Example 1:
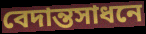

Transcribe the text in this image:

বেদান্তসাধনে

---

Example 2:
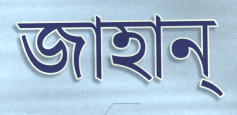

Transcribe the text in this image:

জাহান্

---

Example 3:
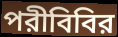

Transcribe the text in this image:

পরীবিবির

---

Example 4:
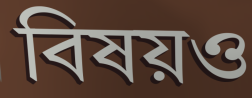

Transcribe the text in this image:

বিষয়ও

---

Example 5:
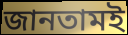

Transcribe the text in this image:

জানতামই